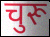
चुरू